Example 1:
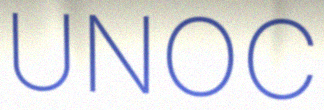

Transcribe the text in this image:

UNOC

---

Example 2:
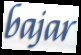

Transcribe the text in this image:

bajar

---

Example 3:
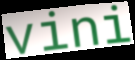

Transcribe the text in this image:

vini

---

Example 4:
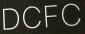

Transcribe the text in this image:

DCFC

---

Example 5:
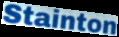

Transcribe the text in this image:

Stainton